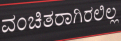
ವಂಚಿತರಾಗಿರಲಿಲ್ಲ